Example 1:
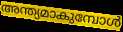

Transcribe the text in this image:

അന്ത്യമാകുമ്പോൾ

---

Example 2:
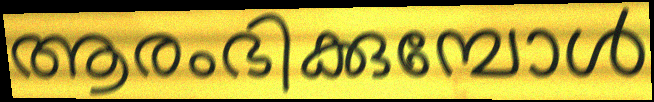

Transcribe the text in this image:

ആരംഭിക്കുമ്പോൾ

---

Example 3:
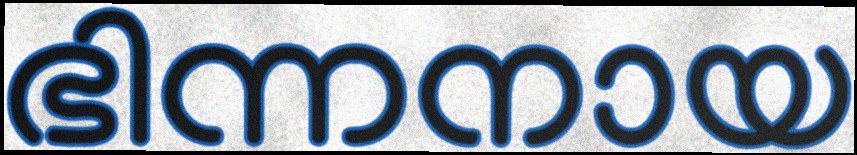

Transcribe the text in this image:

ഭിന്നനായ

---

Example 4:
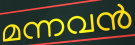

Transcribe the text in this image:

മന്നവൻ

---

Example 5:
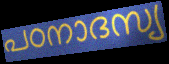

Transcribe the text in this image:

പഠനാദസ്യ